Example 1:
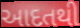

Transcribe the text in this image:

આદતથી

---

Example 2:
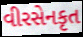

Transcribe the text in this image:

વીરસેનકૃત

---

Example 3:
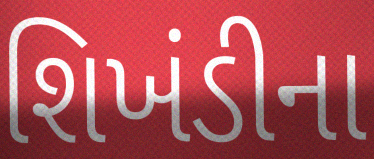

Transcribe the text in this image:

શિખંડીના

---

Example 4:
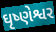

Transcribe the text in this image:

ઘૃષ્ણેશ્વર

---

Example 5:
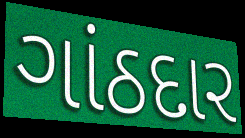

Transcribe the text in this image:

ગાંઠદાર